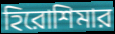
হিরোশিমার